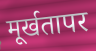
मूर्खतापर